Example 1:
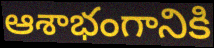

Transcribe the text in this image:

ఆశాభంగానికి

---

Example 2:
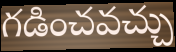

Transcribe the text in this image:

గడించవచ్చు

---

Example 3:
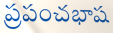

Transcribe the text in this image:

ప్రపంచభాష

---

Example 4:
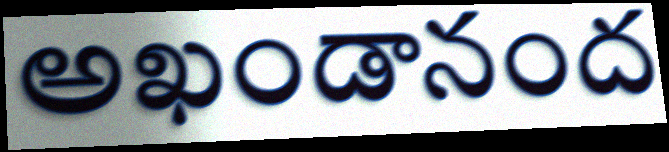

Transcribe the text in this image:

అఖండానంద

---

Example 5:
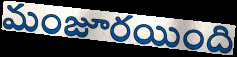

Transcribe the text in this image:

మంజూరయింది